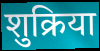
शुक्रिया